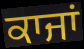
ਕਾਜਾਂ